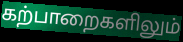
கற்பாறைகளிலும்